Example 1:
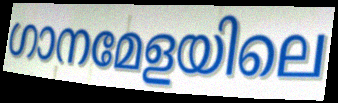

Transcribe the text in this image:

ഗാനമേളയിലെ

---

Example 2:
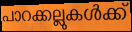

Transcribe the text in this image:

പാറക്കല്ലുകൾക്ക്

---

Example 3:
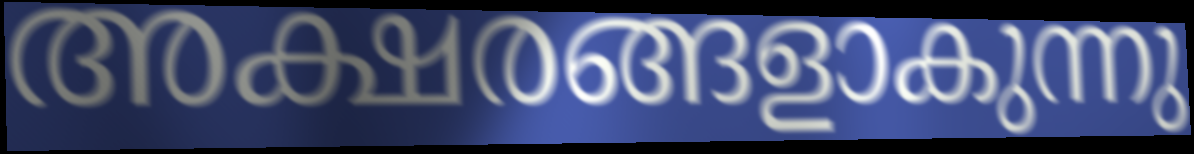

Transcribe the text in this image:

അക്ഷരങ്ങളാകുന്നു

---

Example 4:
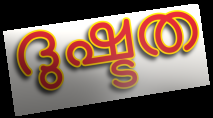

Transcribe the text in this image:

ദുഷ്ടത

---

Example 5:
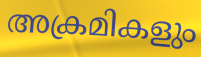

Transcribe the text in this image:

അക്രമികളും